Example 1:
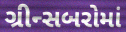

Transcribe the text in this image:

ગ્રીન્સબરોમાં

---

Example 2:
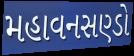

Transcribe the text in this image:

મહાવનસણ્ડો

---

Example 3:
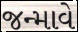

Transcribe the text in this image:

જન્માવે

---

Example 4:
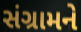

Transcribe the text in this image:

સંગ્રામને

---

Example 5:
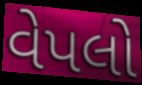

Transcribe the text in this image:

વેપલો